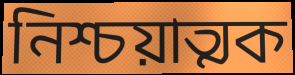
নিশ্চয়াত্মক